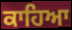
ਕਾਹਿਆ